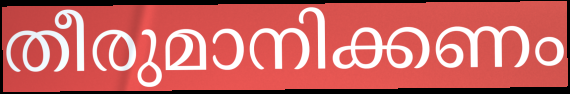
തീരുമാനിക്കണം